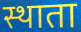
स्थाता